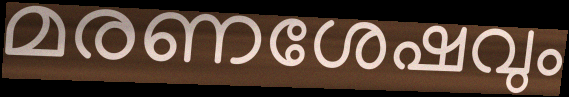
മരണശേഷവും